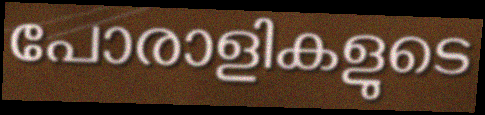
പോരാളികളുടെ